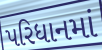
પરિધાનમાં